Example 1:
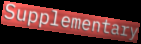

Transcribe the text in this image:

Supplementary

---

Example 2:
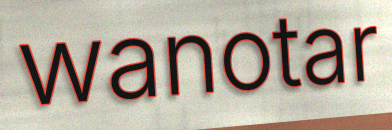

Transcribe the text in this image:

wanotar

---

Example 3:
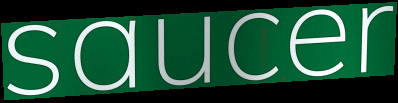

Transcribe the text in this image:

saucer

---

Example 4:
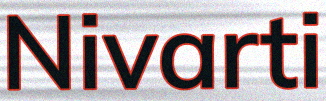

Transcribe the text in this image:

Nivarti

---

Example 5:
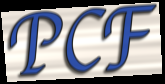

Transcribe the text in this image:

PCF